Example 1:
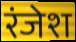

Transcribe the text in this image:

रंजेश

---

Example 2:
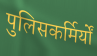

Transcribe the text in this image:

पुलिसकर्मिर्यों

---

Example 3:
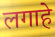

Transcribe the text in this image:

लगाहे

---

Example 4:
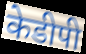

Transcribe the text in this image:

केडीपी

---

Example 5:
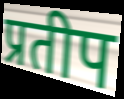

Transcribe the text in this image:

प्रतीप